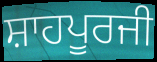
ਸ਼ਾਹਪੂਰਜੀ